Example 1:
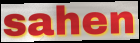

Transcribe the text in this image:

sahen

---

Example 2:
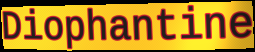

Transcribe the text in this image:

Diophantine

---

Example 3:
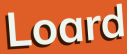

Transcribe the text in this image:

Loard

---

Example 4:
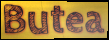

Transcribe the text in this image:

Butea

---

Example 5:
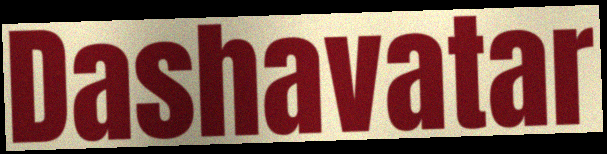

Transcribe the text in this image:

Dashavatar